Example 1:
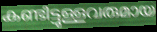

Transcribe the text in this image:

കണ്ടിട്ടുള്ളവരുമായ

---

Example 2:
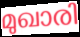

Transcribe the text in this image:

മുഖാരി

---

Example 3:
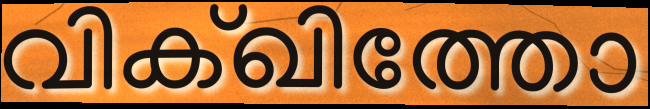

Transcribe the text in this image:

വിക്ഖിത്തോ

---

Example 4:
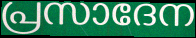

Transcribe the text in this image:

പ്രസാദേന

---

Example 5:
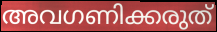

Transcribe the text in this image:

അവഗണിക്കരുത്